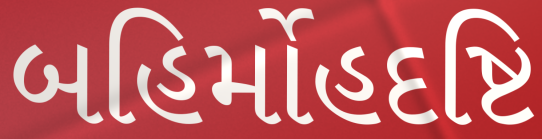
બહિર્મોહદષ્ટિ